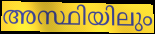
അസ്ഥിയിലും